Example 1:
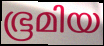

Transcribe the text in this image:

ഭൂമിയ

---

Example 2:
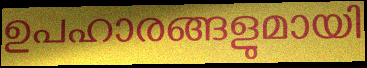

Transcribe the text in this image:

ഉപഹാരങ്ങളുമായി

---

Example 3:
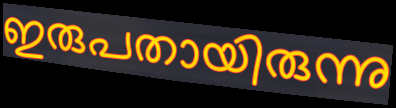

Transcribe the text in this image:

ഇരുപതായിരുന്നു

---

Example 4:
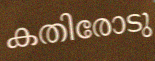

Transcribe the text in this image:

കതിരോടു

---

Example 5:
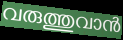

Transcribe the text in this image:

വരുത്തുവാൻ